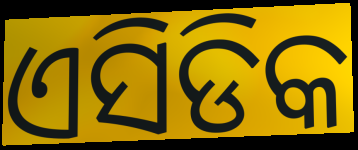
ଏସିଡିକ